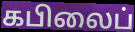
கபிலைப்